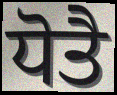
ਧੋਤੈ